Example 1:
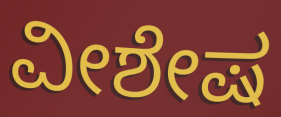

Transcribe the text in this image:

ವೀಶೇಷ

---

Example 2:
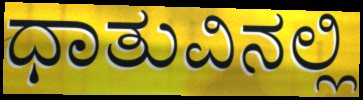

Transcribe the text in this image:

ಧಾತುವಿನಲ್ಲಿ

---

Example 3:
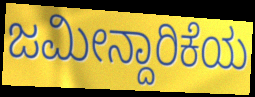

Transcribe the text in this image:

ಜಮೀನ್ದಾರಿಕೆಯ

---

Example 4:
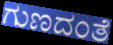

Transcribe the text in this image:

ಗುಣದಂತೆ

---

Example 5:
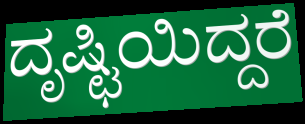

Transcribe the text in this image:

ದೃಷ್ಟಿಯಿದ್ದರೆ